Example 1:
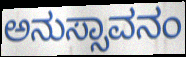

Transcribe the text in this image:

ಅನುಸ್ಸಾವನಂ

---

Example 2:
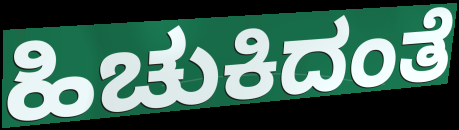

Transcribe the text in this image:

ಹಿಚುಕಿದಂತೆ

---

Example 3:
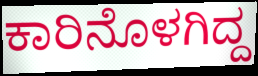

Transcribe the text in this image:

ಕಾರಿನೊಳಗಿದ್ದ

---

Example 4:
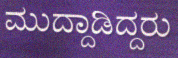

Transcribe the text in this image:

ಮುದ್ದಾಡಿದ್ದರು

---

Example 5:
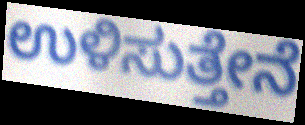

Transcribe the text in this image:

ಉಳಿಸುತ್ತೇನೆ